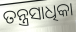
ତନ୍ତ୍ରସାଧିକା